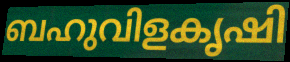
ബഹുവിളകൃഷി